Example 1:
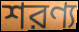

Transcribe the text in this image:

শরণ্য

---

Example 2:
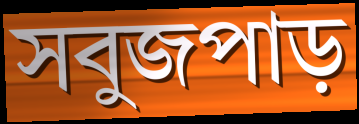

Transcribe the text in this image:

সবুজপাড়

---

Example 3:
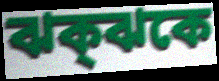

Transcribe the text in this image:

ঝক্ঝকে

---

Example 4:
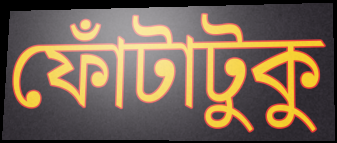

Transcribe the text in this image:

ফোঁটাটুকু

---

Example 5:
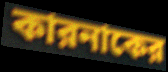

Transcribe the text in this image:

কারনাকের